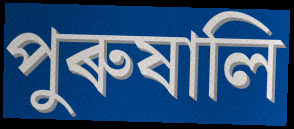
পুৰুষালি